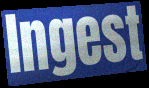
Ingest